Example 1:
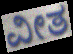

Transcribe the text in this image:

ವೀತ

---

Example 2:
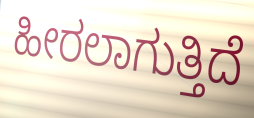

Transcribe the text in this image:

ಹೀರಲಾಗುತ್ತಿದೆ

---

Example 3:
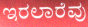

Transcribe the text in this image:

ಇರಲಾರೆವು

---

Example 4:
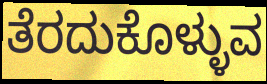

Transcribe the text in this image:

ತೆರದುಕೊಳ್ಳುವ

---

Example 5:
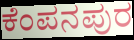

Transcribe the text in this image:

ಕೆಂಪನಪುರ